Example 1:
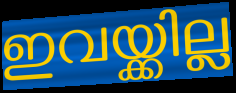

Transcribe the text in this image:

ഇവയ്ക്കില്ല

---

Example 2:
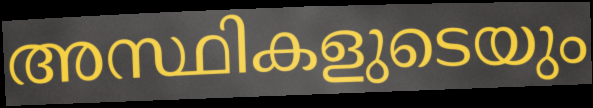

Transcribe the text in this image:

അസ്ഥികളുടെയും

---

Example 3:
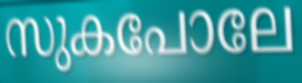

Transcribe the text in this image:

സുകപോലേ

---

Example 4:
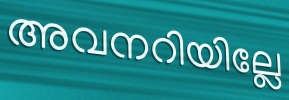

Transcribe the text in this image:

അവനറിയില്ലേ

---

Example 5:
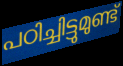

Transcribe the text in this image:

പഠിച്ചിട്ടുമുണ്ട്